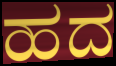
ಹದ